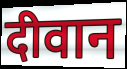
दीवान